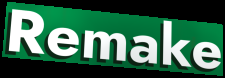
Remake